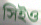
সিইও